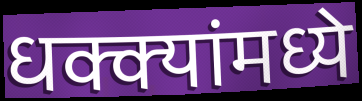
धक्क्यांमध्ये